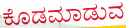
ಕೊಡಮಾಡುವ